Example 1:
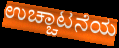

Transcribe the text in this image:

ಉಚ್ಚಾಟನೆಯ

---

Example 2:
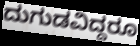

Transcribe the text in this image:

ದುಗುಡವಿದ್ದರೂ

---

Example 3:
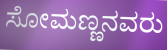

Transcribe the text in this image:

ಸೋಮಣ್ಣನವರು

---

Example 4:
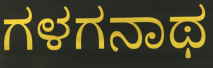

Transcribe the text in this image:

ಗಳಗನಾಥ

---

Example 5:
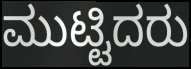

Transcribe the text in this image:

ಮುಟ್ಟಿದರು